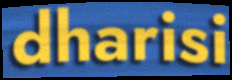
dharisi